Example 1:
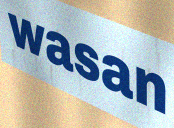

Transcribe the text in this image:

wasan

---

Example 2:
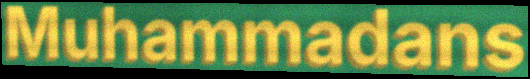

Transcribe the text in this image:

Muhammadans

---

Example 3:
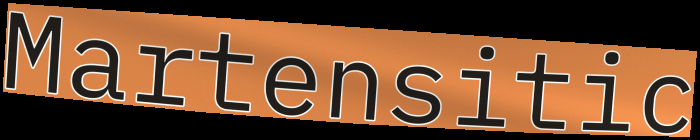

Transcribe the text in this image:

Martensitic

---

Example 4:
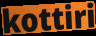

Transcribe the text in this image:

kottiri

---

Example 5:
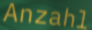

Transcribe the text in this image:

Anzahl